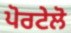
ਪੋਰਟੇਲੋ